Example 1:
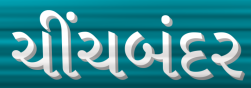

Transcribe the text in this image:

ચીંચબંદર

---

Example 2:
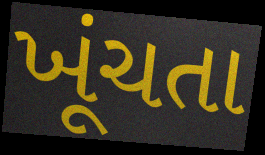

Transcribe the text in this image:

ખૂંચતા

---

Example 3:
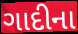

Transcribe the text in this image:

ગાદીના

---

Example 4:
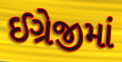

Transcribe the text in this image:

ઈગ્રેજીમાં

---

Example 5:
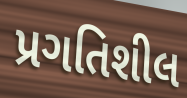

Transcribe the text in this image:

પ્રગતિશીલ